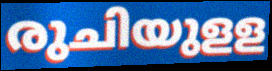
രുചിയുളള